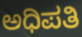
ಅಧಿಪತಿ